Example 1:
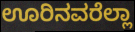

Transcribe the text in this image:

ಊರಿನವರೆಲ್ಲಾ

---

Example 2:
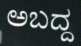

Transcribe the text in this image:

ಅಬದ್ದ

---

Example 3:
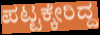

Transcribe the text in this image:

ಪಟ್ಟಕ್ಕೇರಿದ್ದ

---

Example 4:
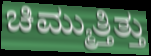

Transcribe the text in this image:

ಚಿಮ್ಮುತ್ತಿತ್ತು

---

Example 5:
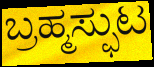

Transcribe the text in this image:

ಬ್ರಹ್ಮಸ್ಫುಟ